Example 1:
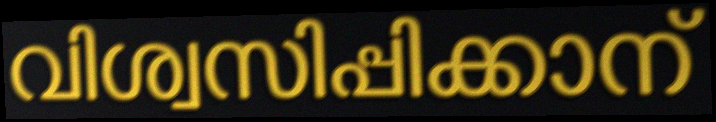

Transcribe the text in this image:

വിശ്വസിപ്പിക്കാന്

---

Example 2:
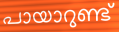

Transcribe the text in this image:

പായാറുണ്ട്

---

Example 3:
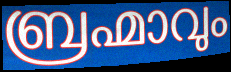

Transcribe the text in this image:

ബ്രഹ്മാവും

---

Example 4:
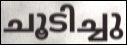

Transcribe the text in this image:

ചൂടിച്ചു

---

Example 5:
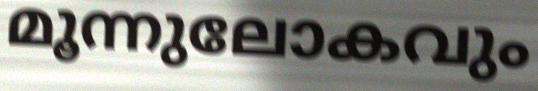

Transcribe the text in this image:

മൂന്നുലോകവും